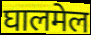
घालमेल